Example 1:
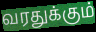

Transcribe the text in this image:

வரதுக்கும்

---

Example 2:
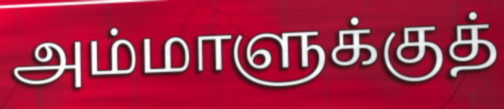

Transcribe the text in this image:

அம்மாளுக்குத்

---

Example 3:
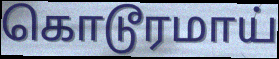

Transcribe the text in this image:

கொடூரமாய்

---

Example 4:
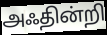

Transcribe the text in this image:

அஃதின்றி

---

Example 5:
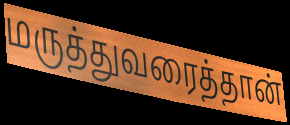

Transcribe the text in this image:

மருத்துவரைத்தான்